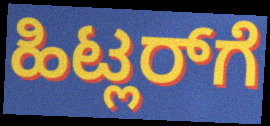
ಹಿಟ್ಲರ್‌ಗೆ